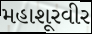
મહાશૂરવીર